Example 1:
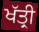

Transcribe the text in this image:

ਖੱਤ੍ਰੀ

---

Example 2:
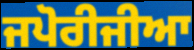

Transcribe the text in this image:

ਜਪੋਰੀਜੀਆ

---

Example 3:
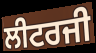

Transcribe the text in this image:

ਲੀਟਰਜੀ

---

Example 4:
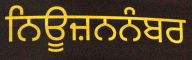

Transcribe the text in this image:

ਨਿਊਜ਼ਨਨੰਬਰ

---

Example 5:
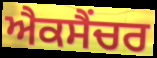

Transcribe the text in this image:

ਐਕਸੈਂਚਰ